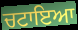
ਚਟਾਇਆ